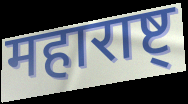
महाराष्ट्